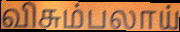
விசும்பலாய்